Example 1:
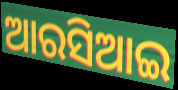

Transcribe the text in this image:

ଆରସିଆଇ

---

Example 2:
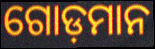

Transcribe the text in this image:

ଗୋଡ଼ମାନ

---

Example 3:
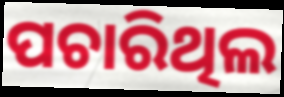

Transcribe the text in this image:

ପଚାରିଥିଲ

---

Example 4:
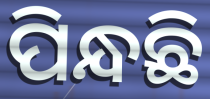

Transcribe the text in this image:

ପିନ୍ଧଛି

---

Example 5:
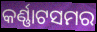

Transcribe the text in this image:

କର୍ଣ୍ଣାଟସମର